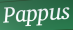
Pappus